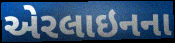
એરલાઇનના